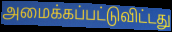
அமைக்கப்பட்டுவிட்டது